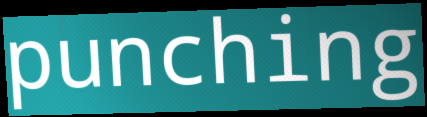
punching